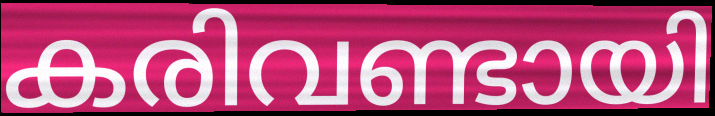
കരിവണ്ടായി